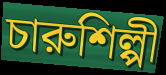
চারুশিল্পী